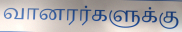
வானரர்களுக்கு